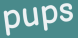
pups